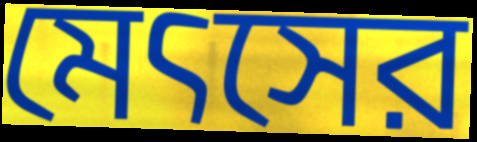
মেৎসের